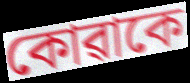
কোৱাকে